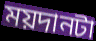
ময়দানটা